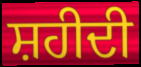
ਸ਼ਹੀਦੀ